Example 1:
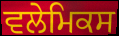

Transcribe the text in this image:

ਵਲੇਮਿਕਸ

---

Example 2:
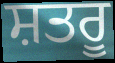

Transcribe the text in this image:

ਸ਼ਤਰੂ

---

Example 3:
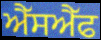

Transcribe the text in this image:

ਐੱਸਐੱਫ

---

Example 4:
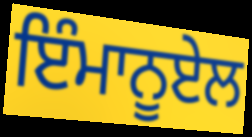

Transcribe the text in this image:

ਇੰਮਾਨੂਏਲ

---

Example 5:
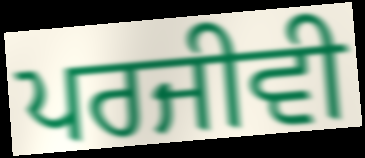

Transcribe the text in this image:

ਪਰਜੀਵੀ